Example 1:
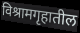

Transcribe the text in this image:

विश्रामगृहातील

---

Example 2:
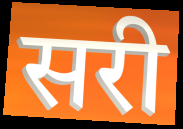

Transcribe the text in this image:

सरी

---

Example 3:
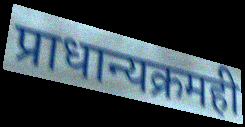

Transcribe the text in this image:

प्राधान्यक्रमही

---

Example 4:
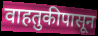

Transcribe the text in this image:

वाहतुकीपासून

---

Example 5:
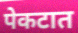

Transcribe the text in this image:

पेकटात